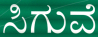
ಸಿಗುವೆ